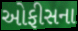
ઓફીસના